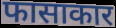
फासाकार